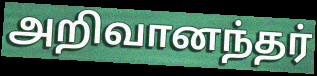
அறிவானந்தர்